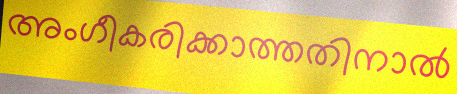
അംഗീകരിക്കാത്തതിനാൽ